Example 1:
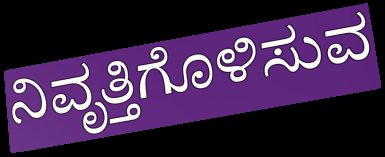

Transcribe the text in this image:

ನಿವೃತ್ತಿಗೊಳಿಸುವ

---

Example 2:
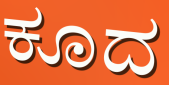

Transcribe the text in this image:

ಕೂದ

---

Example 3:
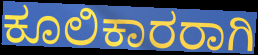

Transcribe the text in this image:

ಕೂಲಿಕಾರರಾಗಿ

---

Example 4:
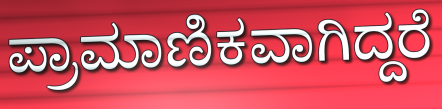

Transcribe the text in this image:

ಪ್ರಾಮಾಣಿಕವಾಗಿದ್ದರೆ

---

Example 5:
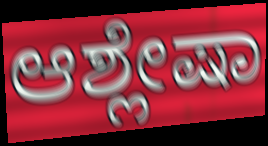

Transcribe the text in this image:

ಆಶ್ಲೇಷಾ